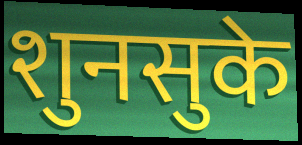
शुनसुके